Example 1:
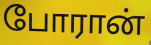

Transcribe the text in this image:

போரான்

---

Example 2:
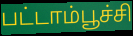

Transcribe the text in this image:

பட்டாம்பூச்சி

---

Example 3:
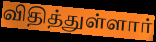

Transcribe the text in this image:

விதித்துள்ளார்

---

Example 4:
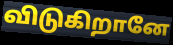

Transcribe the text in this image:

விடுகிறானே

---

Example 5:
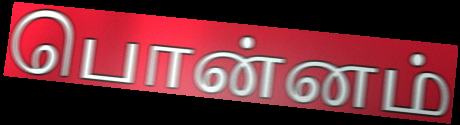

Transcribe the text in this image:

பொன்னம்